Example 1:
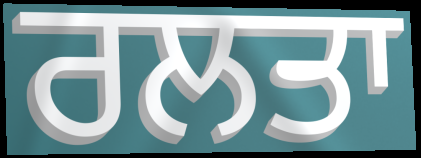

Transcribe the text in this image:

ਰਲਤਾ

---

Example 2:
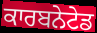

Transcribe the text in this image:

ਕਾਰਬਨੇਟੇਡ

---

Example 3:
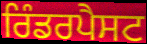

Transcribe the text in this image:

ਰਿੰਡਰਪੈਸਟ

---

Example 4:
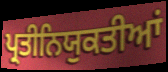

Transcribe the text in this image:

ਪ੍ਰਤੀਨਿਯੁਕਤੀਆਂ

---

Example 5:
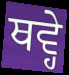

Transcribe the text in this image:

ਥਵ੍ਹੇ